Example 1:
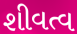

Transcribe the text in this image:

શીવત્વ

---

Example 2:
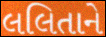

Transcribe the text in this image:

લલિતાને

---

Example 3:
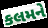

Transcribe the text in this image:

કલમને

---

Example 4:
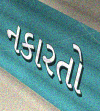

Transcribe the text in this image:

નકારતો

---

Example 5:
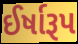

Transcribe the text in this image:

ઈર્ષારૂપ